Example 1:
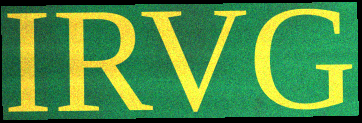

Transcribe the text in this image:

IRVG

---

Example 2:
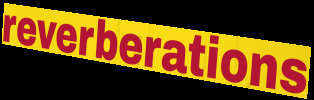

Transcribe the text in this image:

reverberations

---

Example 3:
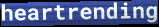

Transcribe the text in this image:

heartrending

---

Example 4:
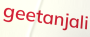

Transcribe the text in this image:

geetanjali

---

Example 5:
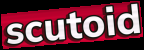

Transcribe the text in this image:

scutoid